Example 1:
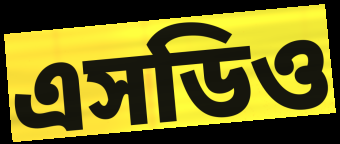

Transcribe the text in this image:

এসডিও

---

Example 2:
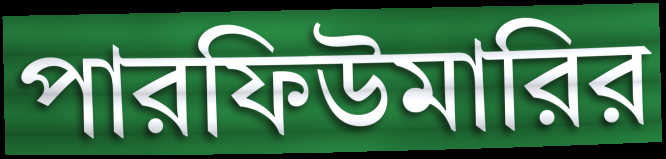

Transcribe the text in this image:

পারফিউমারির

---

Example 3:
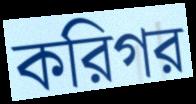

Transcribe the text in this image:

করিগর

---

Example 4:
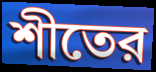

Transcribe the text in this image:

শীতের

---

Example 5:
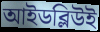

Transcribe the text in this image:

আইডব্লিউই